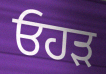
ਓਹੜ